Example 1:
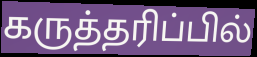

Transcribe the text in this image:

கருத்தரிப்பில்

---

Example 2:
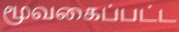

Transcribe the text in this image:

மூவகைப்பட்ட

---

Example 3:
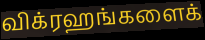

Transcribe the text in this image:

விக்ரஹங்களைக்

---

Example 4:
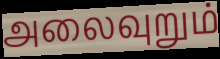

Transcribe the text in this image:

அலைவுறும்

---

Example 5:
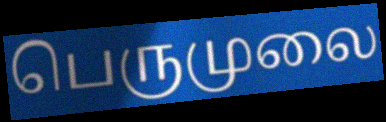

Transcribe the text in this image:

பெருமுலை